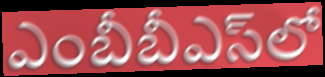
ఎంబీబీఎస్‌లో